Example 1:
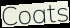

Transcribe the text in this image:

Coats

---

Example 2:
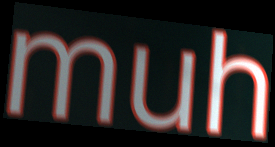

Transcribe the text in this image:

muh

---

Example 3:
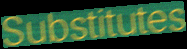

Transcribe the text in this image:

Substitutes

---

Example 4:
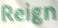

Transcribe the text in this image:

Reign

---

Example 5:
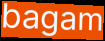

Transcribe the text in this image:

bagam